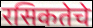
रसिकतेचे